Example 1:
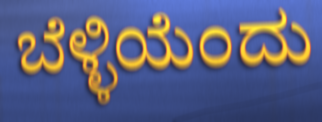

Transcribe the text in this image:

ಬೆಳ್ಳಿಯೆಂದು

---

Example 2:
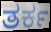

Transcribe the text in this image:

ತರ್ಕ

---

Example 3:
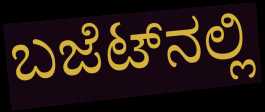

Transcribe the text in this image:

ಬಜೆಟ್‌ನಲ್ಲಿ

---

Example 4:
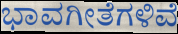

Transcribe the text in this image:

ಭಾವಗೀತೆಗಳಿವೆ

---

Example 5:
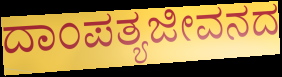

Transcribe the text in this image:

ದಾಂಪತ್ಯಜೀವನದ